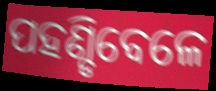
ପହଣ୍ଡିବେଳେ